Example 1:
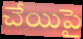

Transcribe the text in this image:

చేయిపై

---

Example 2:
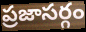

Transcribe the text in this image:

ప్రజాసర్గం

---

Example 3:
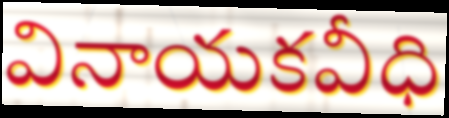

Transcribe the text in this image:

వినాయకవీధి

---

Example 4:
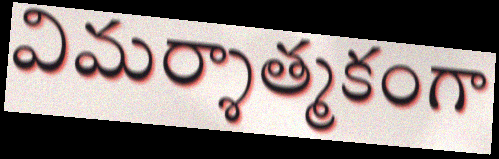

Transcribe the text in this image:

విమర్శాత్మకంగా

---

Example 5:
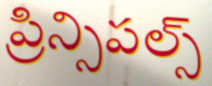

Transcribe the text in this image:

ప్రిన్సిపల్స్